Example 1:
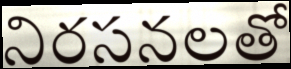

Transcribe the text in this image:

నిరసనలతో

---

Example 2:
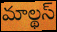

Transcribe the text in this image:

మాల్థస్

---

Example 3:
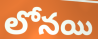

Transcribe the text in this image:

లోనయి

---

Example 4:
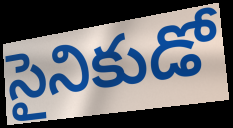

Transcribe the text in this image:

సైనికుడో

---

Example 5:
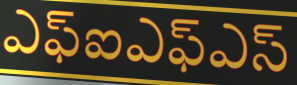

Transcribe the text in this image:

ఎఫ్ఐఎఫ్ఎస్